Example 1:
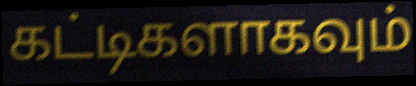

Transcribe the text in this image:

கட்டிகளாகவும்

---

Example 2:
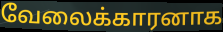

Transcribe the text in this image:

வேலைக்காரனாக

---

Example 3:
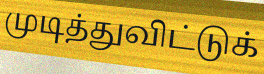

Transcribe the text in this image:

முடித்துவிட்டுக்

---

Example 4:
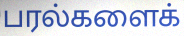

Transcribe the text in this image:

பரல்களைக்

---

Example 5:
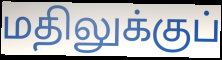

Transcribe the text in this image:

மதிலுக்குப்